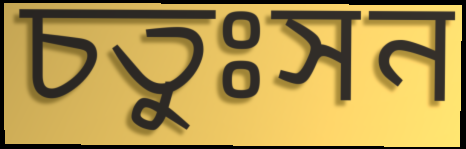
চতুঃসন